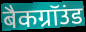
बैकग्रॉउंड